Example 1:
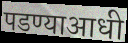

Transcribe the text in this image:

पडण्याआधी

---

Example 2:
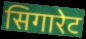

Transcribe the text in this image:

सिगारेट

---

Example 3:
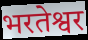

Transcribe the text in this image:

भरतेश्वर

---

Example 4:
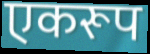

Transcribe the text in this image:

एकरूप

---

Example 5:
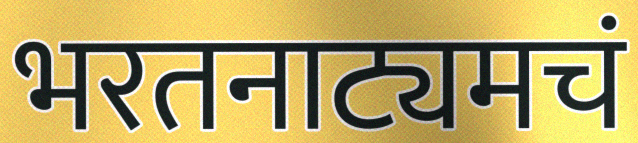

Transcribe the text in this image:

भरतनाट्यमचं